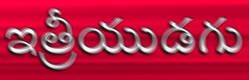
ఇత్రీయుడగు